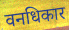
वनधिकार